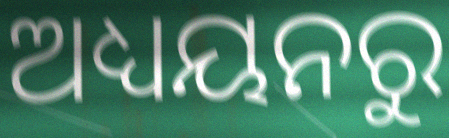
ଅଧ୍ୟୟନରୁ